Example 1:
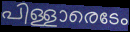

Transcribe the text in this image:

പിള്ളാരെടേം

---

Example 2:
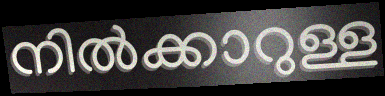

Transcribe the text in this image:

നിൽക്കാറുള്ള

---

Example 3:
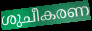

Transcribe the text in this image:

ശുചീകരണ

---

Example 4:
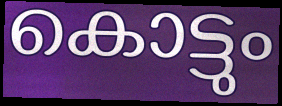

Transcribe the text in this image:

കൊട്ടും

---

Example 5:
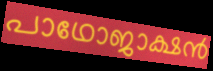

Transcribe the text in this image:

പാഥോജാക്ഷൻ